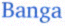
Banga